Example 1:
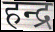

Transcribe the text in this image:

हन्द्र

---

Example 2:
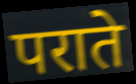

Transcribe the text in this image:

पराते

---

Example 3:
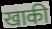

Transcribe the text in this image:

खाकी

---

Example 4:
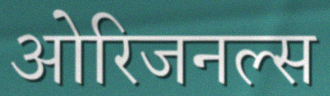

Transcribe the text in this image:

ओरिजनल्स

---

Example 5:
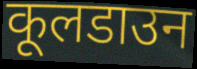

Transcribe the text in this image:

कूलडाउन